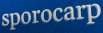
sporocarp